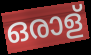
ഒരാള്